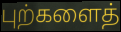
புற்களைத்